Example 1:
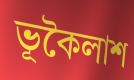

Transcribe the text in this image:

ভূকৈলাশ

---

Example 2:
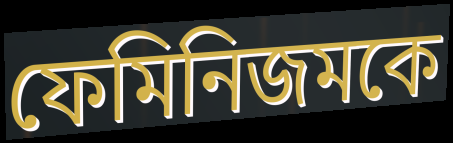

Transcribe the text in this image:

ফেমিনিজমকে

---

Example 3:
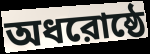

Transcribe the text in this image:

অধরোষ্ঠে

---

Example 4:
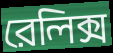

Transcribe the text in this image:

রেলিক্স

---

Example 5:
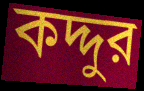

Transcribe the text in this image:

কদ্দুর